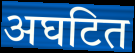
अघटित